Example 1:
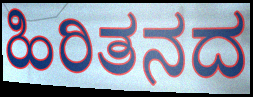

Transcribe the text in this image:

ಹಿರಿತನದ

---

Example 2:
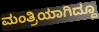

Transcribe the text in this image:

ಮಂತ್ರಿಯಾಗಿದ್ದೂ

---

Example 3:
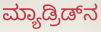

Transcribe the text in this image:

ಮ್ಯಾಡ್ರಿಡ್‌ನ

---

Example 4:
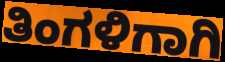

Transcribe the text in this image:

ತಿಂಗಳಿಗಾಗಿ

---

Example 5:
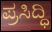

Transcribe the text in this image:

ಪ್ರಸಿದ್ಧಿ